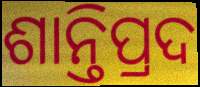
ଶାନ୍ତିପ୍ରଦ